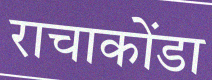
राचाकोंडा